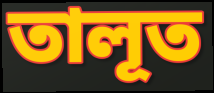
তালূত